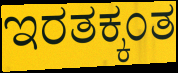
ಇರತಕ್ಕಂತ